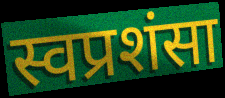
स्वप्रशंसा